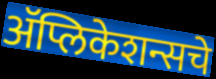
ॲप्लिकेशन्सचे